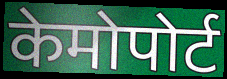
केमोपोर्ट